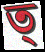
ত্